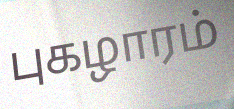
புகழாரம்